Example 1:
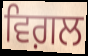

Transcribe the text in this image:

ਵਿਗ਼ਲ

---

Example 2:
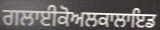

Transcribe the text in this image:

ਗਲਾਈਕੋਅਲਕਾਲਾਇਡ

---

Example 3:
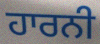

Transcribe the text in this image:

ਹਾਰਨੀ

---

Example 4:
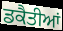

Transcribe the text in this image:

ਡਕੈਤੀਆਂ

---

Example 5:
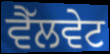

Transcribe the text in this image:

ਵੈੱਲਵੇਟ